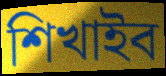
শিখাইব